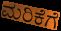
ಮರಿಕೆಗೆ